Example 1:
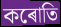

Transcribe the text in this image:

কৰোতি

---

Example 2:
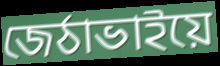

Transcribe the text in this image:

জেঠাভাইয়ে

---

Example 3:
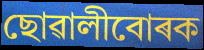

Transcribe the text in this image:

ছোৱালীবোৰক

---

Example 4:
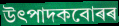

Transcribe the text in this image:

উৎপাদকবোৰৰ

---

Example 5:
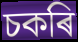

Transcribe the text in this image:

চকৰি